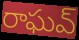
రాఘవ్